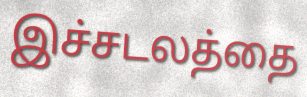
இச்சடலத்தை